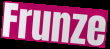
Frunze